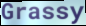
Grassy